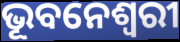
ଭୂବନେଶ୍ୱରୀ